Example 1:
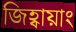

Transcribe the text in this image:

জিহ্বায়াং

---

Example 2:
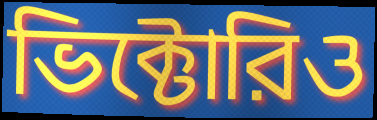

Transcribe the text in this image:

ভিক্টোরিও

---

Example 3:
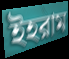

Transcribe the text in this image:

ইহরাম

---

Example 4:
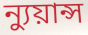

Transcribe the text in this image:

ন্যুয়ান্স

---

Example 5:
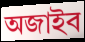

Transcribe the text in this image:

অজাইব